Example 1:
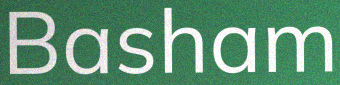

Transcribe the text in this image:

Basham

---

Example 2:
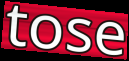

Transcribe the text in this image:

tose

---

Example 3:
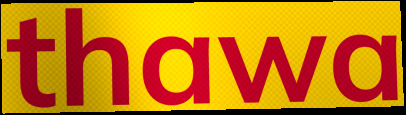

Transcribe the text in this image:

thawa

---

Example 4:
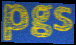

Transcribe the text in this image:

pgs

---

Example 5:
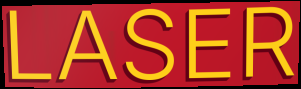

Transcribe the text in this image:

LASER